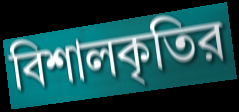
বিশালকৃতির